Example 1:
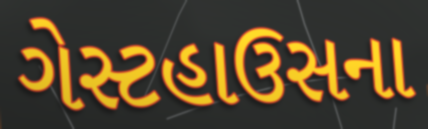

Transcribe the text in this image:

ગેસ્ટહાઉસના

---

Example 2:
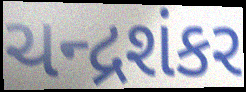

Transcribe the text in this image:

ચન્દ્રશંકર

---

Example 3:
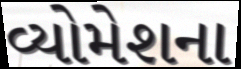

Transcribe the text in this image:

વ્યોમેશના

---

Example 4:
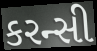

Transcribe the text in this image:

કરન્સી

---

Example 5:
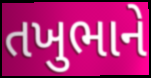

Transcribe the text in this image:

તખુભાને